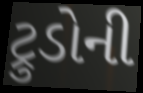
ટ્રુડોની